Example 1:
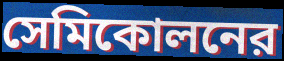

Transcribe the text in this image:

সেমিকোলনের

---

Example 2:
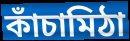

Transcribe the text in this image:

কাঁচামিঠা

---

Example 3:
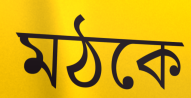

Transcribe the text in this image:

মঠকে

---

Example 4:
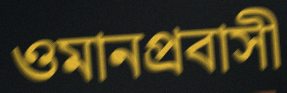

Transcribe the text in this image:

ওমানপ্রবাসী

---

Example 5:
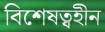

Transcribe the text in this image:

বিশেষত্বহীন